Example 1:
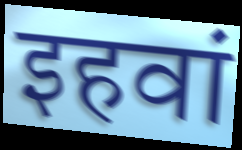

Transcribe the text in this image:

इहवां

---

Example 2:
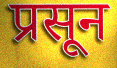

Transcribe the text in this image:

प्रसून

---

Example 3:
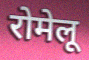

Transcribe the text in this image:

रोमेलू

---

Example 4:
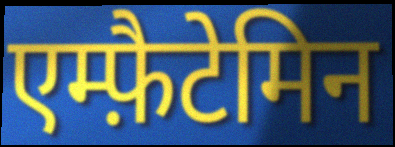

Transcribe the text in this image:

एम्फ़ैटेमिन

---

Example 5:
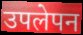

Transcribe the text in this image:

उपलेपन